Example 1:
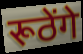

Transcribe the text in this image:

रूठेंगे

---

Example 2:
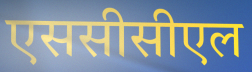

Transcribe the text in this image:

एससीसीएल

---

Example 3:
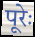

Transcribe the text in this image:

पूरेः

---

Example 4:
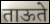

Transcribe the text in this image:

ताऊते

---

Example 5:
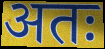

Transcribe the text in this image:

अतः